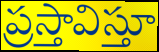
ప్రస్తావిస్తూ